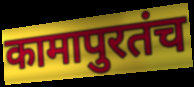
कामापुरतंच